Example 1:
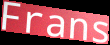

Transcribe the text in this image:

Frans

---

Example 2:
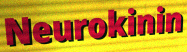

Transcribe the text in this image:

Neurokinin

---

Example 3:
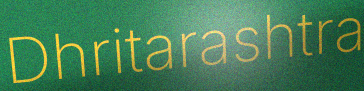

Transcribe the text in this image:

Dhritarashtra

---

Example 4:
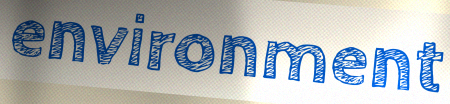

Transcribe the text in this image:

environment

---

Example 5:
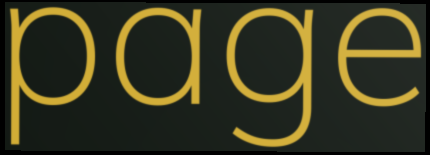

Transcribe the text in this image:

page